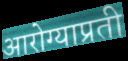
आरोग्याप्रती